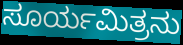
ಸೂರ್ಯಮಿತ್ರನು